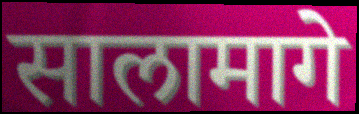
सालामागे